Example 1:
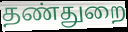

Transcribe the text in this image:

தண்துறை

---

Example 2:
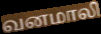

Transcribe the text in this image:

வனமாலி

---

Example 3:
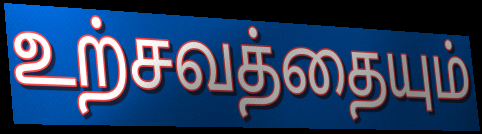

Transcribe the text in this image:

உற்சவத்தையும்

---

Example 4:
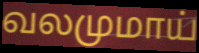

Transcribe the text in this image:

வலமுமாய்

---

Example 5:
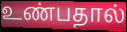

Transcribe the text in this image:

உண்பதால்